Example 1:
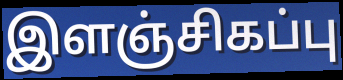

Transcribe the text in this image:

இளஞ்சிகப்பு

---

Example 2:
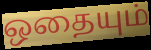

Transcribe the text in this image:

ஒதையும்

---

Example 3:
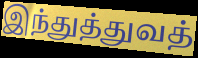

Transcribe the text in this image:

இந்துத்துவத்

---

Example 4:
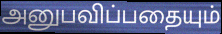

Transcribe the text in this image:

அனுபவிப்பதையும்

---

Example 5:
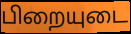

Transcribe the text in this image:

பிறையுடை